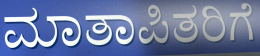
ಮಾತಾಪಿತರಿಗೆ